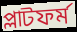
প্লাটফর্ম